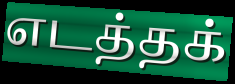
எடத்தக்